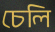
চেলি